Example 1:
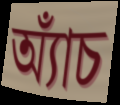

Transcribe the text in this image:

অ্যাঁচ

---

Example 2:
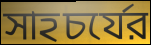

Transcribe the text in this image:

সাহচর্যের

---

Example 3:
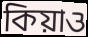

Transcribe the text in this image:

কিয়াও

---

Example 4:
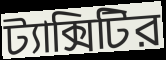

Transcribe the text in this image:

ট্যাক্সিটির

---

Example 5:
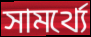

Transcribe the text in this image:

সামর্থ্যে